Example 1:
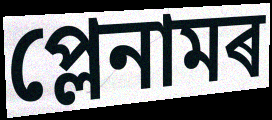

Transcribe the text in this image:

প্লেনামৰ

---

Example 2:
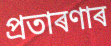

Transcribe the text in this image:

প্ৰতাৰণাৰ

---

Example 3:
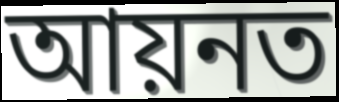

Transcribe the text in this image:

আয়নত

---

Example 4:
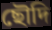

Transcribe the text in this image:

ছৌদি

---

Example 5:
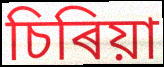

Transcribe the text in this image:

চিৰিয়া